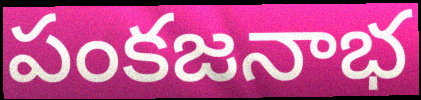
పంకజనాభ